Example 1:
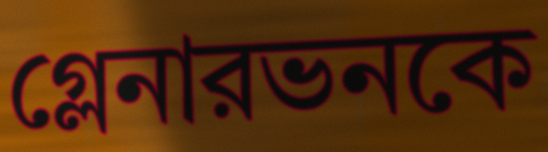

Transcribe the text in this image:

গ্লেনারভনকে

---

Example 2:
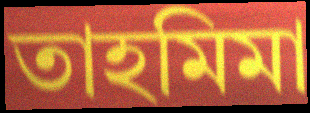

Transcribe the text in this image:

তাহমিমা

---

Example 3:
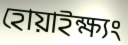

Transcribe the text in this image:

হোয়াইক্ষ্যং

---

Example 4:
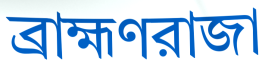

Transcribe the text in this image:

ব্রাহ্মণরাজা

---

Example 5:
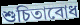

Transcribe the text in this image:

শুচিতাবোধ